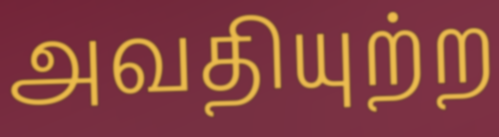
அவதியுற்ற